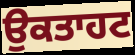
ਉਕਤਾਹਟ